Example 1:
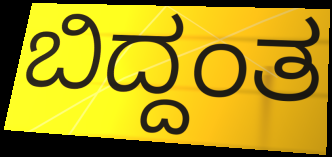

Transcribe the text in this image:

ಬಿದ್ದಂತ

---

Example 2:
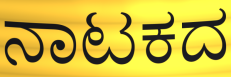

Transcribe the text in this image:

ನಾಟಕದ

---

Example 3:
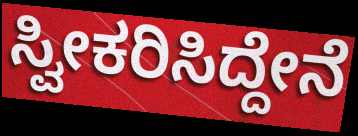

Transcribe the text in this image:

ಸ್ವೀಕರಿಸಿದ್ದೇನೆ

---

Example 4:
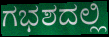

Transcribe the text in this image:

ಗಭಶದಲ್ಲಿ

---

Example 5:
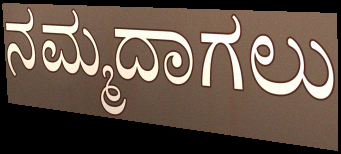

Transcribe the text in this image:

ನಮ್ಮದಾಗಲು